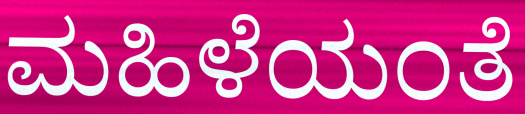
ಮಹಿಳೆಯಂತೆ